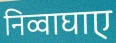
निव्वाघाए